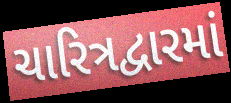
ચારિત્રદ્વારમાં